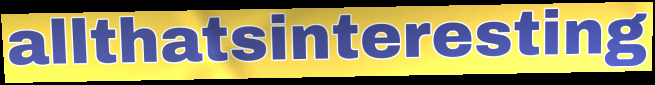
allthatsinteresting